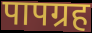
पापग्रह